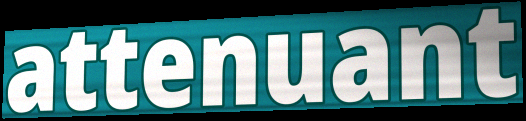
attenuant